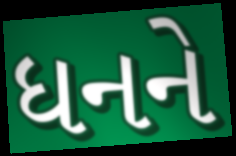
ધનને